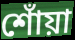
শোঁয়া